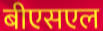
बीएसएल